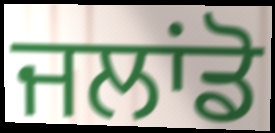
ਜਲਾਂਡੋ